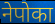
नेपोका